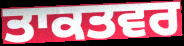
ਤਾਕਤਵਰ